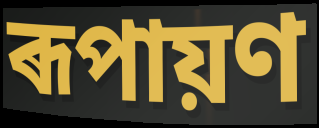
ৰূপায়ণ